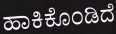
ಹಾಕಿಕೊಂಡಿದೆ